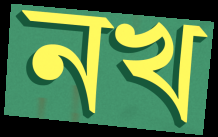
নখ